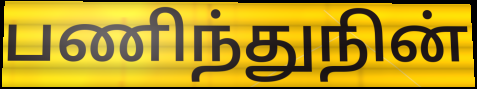
பணிந்துநின்